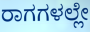
ರಾಗಗಳಲ್ಲೇ